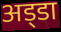
अड्‌डा